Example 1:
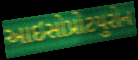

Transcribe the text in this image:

આઇસોપ્રોટયુરોન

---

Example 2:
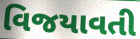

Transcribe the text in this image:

વિજયાવતી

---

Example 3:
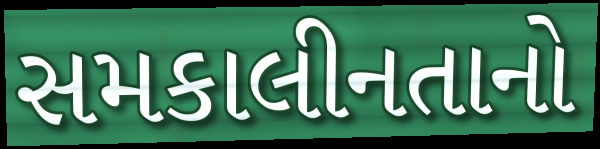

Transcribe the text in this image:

સમકાલીનતાનો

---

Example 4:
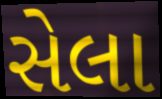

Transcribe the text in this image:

સેલા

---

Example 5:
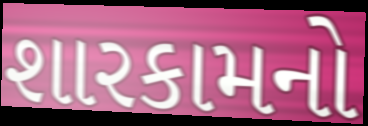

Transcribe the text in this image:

શારકામનો